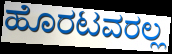
ಹೊರಟವರಲ್ಲ